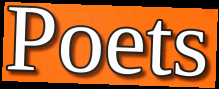
Poets